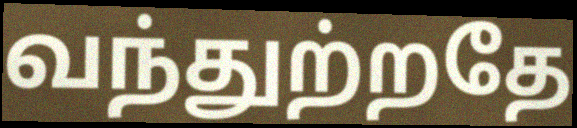
வந்துற்றதே